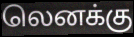
லெனக்கு